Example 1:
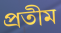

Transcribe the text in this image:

প্রতীম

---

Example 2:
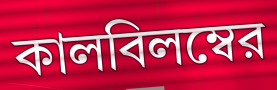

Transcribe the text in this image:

কালবিলম্বের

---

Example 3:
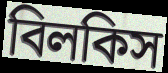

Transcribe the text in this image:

বিলকিস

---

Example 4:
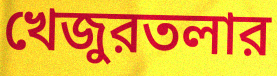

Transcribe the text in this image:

খেজুরতলার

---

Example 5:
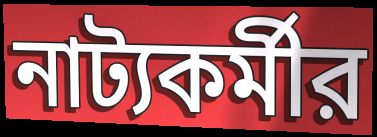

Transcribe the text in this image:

নাট্যকর্মীর